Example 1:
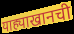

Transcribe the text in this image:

याह्याखानची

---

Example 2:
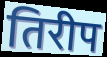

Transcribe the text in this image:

तिरीप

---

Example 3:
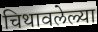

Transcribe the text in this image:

चिथावलेल्या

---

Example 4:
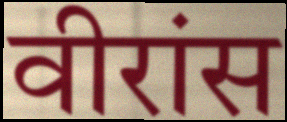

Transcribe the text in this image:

वीरांस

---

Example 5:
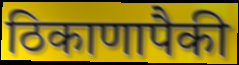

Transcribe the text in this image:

ठिकाणापैकी